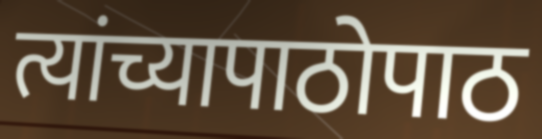
त्यांच्यापाठोपाठ